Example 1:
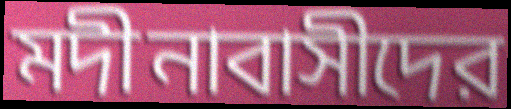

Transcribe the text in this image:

মদীনাবাসীদের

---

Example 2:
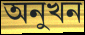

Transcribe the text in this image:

অনুখন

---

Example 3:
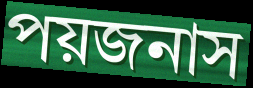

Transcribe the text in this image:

পয়জনাস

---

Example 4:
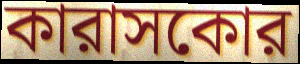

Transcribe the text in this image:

কারাসকোর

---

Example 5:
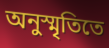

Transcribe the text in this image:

অনুস্মৃতিতে